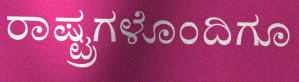
ರಾಷ್ಟ್ರಗಳೊಂದಿಗೂ